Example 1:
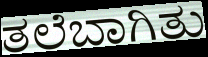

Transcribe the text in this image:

ತಲೆಬಾಗಿತು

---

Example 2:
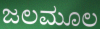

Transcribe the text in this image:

ಜಲಮೂಲ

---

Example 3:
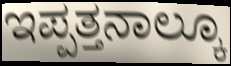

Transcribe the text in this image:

ಇಪ್ಪತ್ತನಾಲ್ಕೂ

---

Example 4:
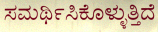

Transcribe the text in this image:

ಸಮರ್ಥಿಸಿಕೊಳ್ಳುತ್ತಿದೆ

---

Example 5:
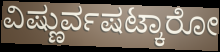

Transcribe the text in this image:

ವಿಷ್ಣುರ್ವಷಟ್ಕಾರೋ